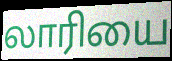
லாரியை